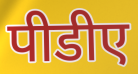
पीडीए